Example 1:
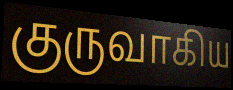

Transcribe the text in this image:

குருவாகிய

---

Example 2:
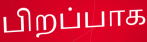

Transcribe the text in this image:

பிறப்பாக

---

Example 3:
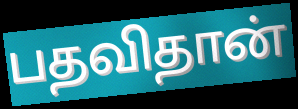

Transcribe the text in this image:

பதவிதான்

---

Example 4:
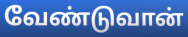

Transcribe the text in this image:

வேண்டுவான்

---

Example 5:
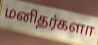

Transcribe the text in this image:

மனிதர்களா